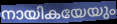
നായികയേയും